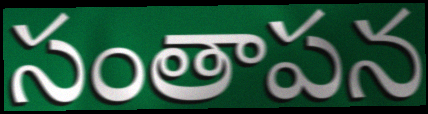
సంతాపన